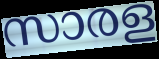
സാരള